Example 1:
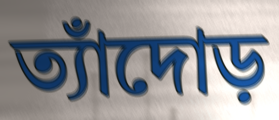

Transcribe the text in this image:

ত্যাঁদোড়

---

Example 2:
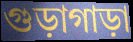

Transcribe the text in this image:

গুড়াগাড়া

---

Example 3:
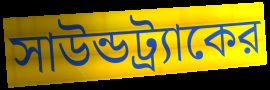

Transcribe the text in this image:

সাউন্ডট্র্যাকের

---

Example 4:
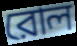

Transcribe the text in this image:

রোল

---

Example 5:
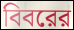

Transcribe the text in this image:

বিবরের